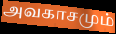
அவகாசமும்